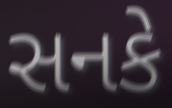
સનકે